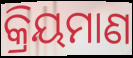
କ୍ରିୟମାଣ